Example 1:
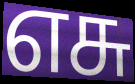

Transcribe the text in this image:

எசு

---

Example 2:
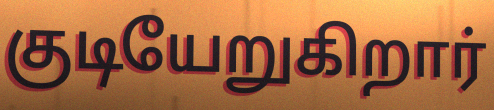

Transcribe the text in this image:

குடியேறுகிறார்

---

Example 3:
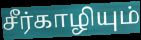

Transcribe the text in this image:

சீர்காழியும்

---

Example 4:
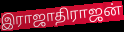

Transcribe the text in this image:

இராஜாதிராஜன்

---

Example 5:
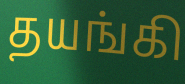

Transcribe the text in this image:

தயங்கி